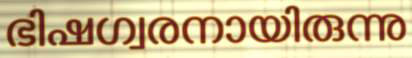
ഭിഷഗ്വരനായിരുന്നു